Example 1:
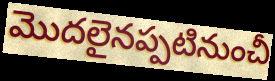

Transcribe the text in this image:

మొదలైనప్పటినుంచీ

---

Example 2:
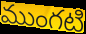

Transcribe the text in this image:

ముంగటి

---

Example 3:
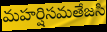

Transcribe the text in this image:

మహర్షిసమతేజసి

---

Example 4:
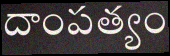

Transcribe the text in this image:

దాంపత్యం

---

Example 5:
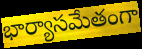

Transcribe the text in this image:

భార్యాసమేతంగా